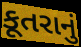
કૂતરાનું